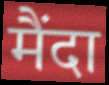
मैंदा